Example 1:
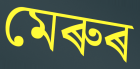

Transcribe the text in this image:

মেৰুৰ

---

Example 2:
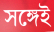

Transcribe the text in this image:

সঙ্গেই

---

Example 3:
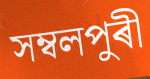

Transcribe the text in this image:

সম্বলপুৰী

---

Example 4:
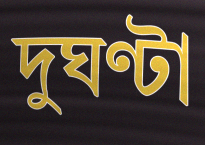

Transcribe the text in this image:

দুঘণ্টা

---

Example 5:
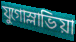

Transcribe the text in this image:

যুগোস্লাভিয়া